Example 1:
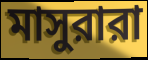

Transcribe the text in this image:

মাসুরারা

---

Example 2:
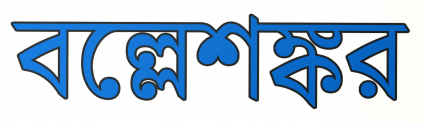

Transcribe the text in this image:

বল্লেশঙ্কর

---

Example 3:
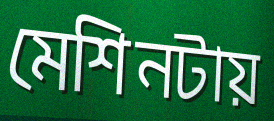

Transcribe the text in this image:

মেশিনটায়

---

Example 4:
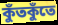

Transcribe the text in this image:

কুঁতকুঁতে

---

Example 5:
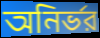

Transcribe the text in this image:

অনির্ভর